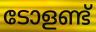
ടോളണ്ട്